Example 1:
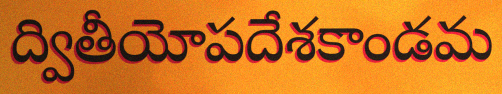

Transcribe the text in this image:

ద్వితీయోపదేశకాండమ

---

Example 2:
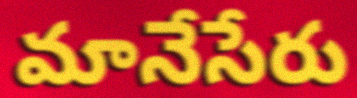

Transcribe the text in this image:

మానేసేరు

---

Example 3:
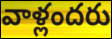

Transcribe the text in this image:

వాళ్లందరు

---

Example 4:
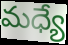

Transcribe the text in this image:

మధ్యే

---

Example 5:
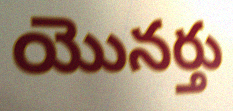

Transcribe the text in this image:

యొనర్తు